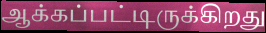
ஆக்கப்பட்டிருக்கிறது